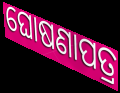
ଘୋଷଣାପତ୍ର